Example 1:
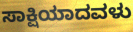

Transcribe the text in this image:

ಸಾಕ್ಷಿಯಾದವಳು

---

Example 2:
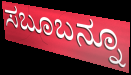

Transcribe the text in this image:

ಸಬೂಬನ್ನೂ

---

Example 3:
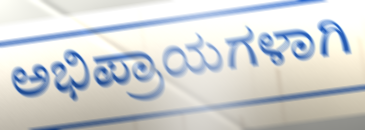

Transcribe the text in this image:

ಅಭಿಪ್ರಾಯಗಳಾಗಿ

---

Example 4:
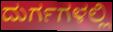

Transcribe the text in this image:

ದುರ್ಗಗಳಲ್ಲಿ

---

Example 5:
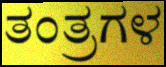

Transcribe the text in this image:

ತಂತ್ರಗಳ